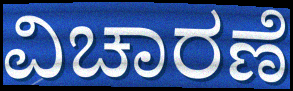
ವಿಚಾರಣೆ